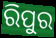
ରିପୁର